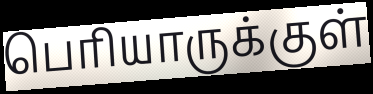
பெரியாருக்குள்